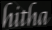
hitha